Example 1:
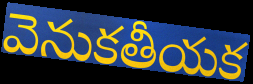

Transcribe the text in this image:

వెనుకతీయక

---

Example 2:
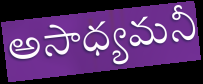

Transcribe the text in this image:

అసాధ్యమనీ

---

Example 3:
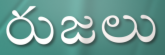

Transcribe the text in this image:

రుజలు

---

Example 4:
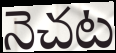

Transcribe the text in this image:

నెచట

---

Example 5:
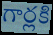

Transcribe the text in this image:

గార్లకి